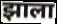
झाला